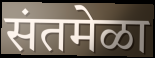
संतमेळा